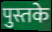
पुस्तके